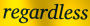
regardless